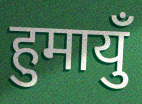
हुमायुँ